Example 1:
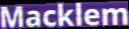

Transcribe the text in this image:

Macklem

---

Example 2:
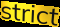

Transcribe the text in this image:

strict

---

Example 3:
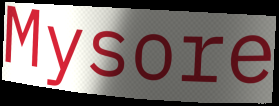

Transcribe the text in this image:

Mysore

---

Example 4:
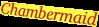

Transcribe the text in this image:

Chambermaid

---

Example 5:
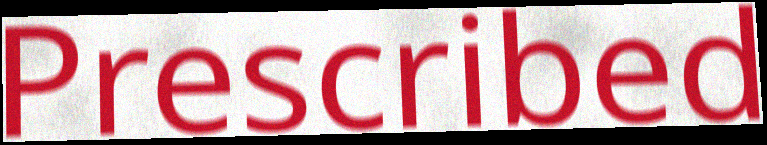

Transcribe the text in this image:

Prescribed